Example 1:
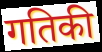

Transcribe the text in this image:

गतिकी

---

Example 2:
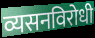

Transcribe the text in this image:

व्यसनविरोधी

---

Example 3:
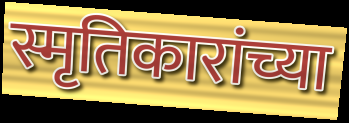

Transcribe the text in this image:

स्मृतिकारांच्या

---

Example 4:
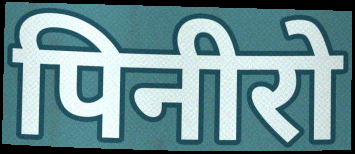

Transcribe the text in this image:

पिनीरो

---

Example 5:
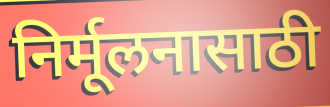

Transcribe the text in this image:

निर्मूलनासाठी